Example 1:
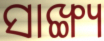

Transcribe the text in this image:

ସାଙ୍ଖ୍ୟ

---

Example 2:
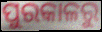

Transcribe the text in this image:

ପୁରକାଳରୁ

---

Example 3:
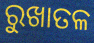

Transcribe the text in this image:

ରୁଖାତଳ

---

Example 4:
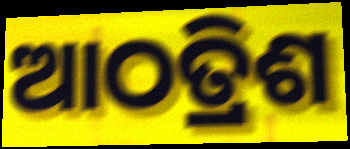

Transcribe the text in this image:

ଆଠତ୍ରିଶ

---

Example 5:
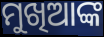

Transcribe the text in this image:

ମୁଖିଆଙ୍କ